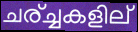
ചര്ച്ചകളില്